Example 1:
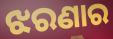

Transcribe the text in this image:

ଝରଣାର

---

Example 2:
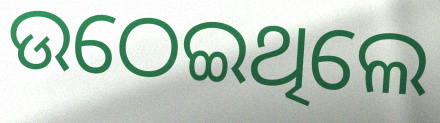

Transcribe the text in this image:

ଉଠେଇଥିଲେ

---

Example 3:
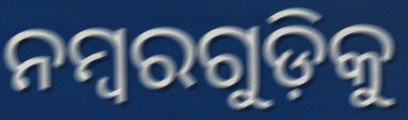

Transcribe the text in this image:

ନମ୍ବରଗୁଡ଼ିକୁ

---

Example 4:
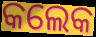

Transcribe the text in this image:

କଲେକ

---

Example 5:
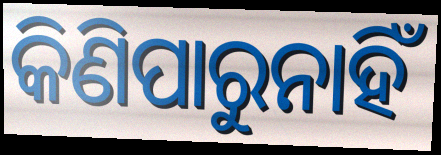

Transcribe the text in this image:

କିଣିପାରୁନାହିଁ